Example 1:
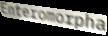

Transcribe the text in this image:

Enteromorpha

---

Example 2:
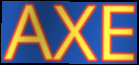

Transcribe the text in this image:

AXE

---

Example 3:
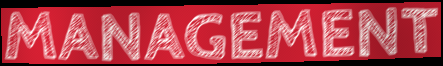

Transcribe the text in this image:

MANAGEMENT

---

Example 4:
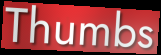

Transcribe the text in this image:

Thumbs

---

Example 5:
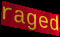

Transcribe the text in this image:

raged